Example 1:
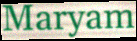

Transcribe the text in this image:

Maryam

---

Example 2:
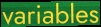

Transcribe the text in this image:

variables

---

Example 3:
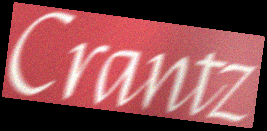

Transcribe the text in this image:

Crantz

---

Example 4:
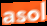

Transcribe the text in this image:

asol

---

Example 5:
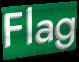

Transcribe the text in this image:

Flag